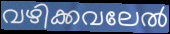
വഴിക്കവലേൽ